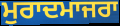
ਮੁਰਾਦਮਾਜਰਾ